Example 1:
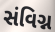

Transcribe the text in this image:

સંવિગ્ન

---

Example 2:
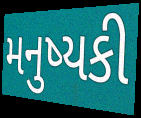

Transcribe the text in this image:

મનુષ્યકી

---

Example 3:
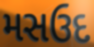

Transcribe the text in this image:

મસઉદ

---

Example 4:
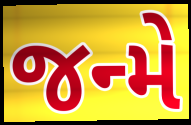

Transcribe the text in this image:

જન્મે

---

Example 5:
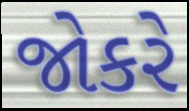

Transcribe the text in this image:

જોકરે